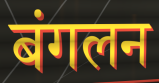
बंगलन